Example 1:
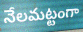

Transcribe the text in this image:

నేలమట్టంగా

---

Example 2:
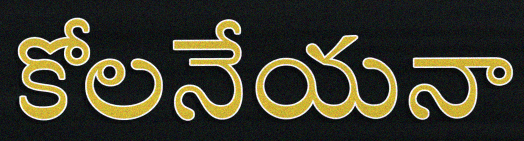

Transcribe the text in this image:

కోలనేయనా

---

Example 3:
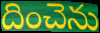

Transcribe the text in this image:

దించెను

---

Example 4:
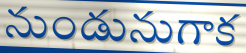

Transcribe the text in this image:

నుండునుగాక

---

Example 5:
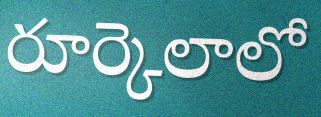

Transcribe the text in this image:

రూర్కెలాలో